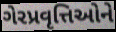
ગેરપ્રવૃત્તિઓને